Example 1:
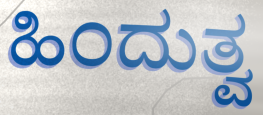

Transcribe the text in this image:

ಹಿಂದುತ್ವ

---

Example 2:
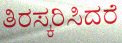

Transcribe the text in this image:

ತಿರಸ್ಕರಿಸಿದರೆ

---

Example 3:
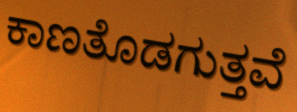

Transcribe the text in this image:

ಕಾಣತೊಡಗುತ್ತವೆ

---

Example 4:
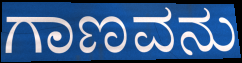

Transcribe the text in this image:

ಗಾಣವನು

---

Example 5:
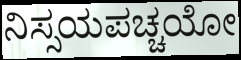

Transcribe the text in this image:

ನಿಸ್ಸಯಪಚ್ಚಯೋ